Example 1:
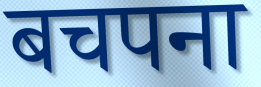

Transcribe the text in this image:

बचपना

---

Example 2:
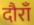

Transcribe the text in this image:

दौराँ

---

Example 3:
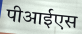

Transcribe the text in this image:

पीआईएस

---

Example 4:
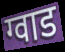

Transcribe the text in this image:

ग्वाड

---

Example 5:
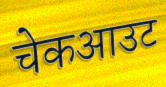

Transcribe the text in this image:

चेकआउट